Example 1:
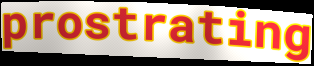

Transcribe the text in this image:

prostrating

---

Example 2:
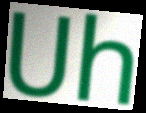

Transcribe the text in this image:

Uh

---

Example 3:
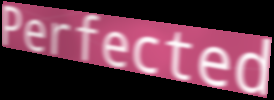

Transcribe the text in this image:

Perfected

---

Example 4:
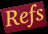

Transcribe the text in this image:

Refs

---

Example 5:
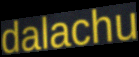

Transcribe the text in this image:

dalachu